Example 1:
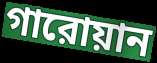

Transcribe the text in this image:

গারোয়ান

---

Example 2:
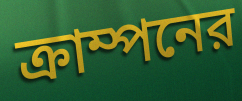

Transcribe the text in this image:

ক্রাম্পনের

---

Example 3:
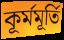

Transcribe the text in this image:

কূর্মমূর্তি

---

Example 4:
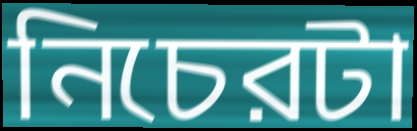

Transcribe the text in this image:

নিচেরটা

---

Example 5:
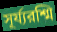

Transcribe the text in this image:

সূর্য্যরশ্মি